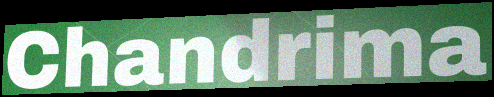
Chandrima